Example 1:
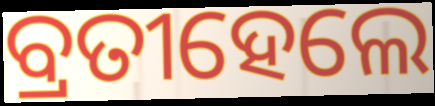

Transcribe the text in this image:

ବ୍ରତୀହେଲେ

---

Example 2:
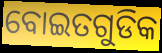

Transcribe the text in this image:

ବୋଇତଗୁଡିକ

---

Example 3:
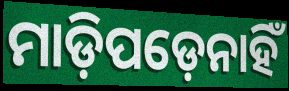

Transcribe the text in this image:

ମାଡ଼ିପଡ଼େନାହିଁ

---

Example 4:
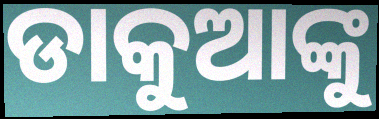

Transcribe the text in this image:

ଡାକୁଆଙ୍କୁ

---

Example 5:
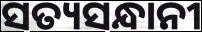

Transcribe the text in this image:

ସତ୍ୟସନ୍ଧାନୀ